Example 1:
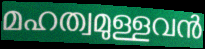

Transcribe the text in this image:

മഹത്വമുള്ളവൻ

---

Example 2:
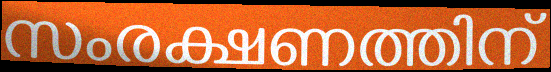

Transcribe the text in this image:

സംരക്ഷണത്തിന്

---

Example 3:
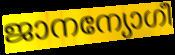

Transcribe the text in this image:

ജാനന്യോഗീ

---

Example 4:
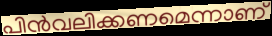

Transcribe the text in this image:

പിൻവലിക്കണമെന്നാണ്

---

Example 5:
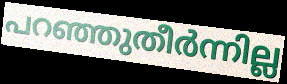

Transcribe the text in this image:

പറഞ്ഞുതീർന്നില്ല